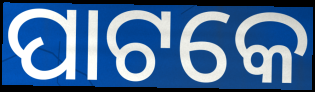
ପାଟକେ